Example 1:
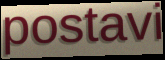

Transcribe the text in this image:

postavi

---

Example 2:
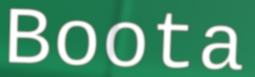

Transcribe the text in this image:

Boota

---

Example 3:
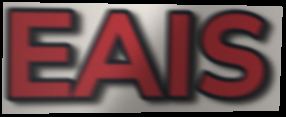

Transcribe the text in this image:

EAIS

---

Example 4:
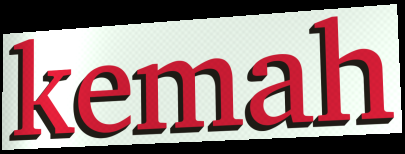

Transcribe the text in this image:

kemah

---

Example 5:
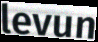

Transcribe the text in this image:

levun